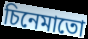
চিনেমাতো